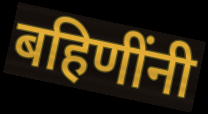
बहिणींनी